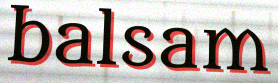
balsam